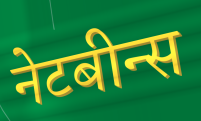
नेटबीन्स